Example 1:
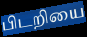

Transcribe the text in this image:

பிடறியை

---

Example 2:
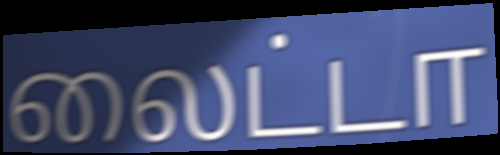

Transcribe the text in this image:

லைட்டா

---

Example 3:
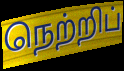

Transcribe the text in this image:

நெற்றிப்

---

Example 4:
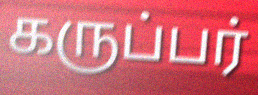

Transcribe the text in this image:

கருப்பர்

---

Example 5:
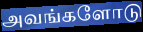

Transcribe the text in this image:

அவங்களோடு